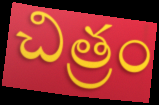
చిత్రం